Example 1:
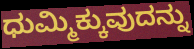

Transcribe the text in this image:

ಧುಮ್ಮಿಕ್ಕುವುದನ್ನು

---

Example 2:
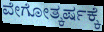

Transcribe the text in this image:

ವೇಗೋತ್ಕರ್ಷಕ್ಕೆ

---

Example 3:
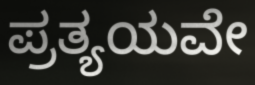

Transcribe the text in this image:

ಪ್ರತ್ಯಯವೇ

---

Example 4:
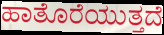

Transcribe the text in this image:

ಹಾತೊರೆಯುತ್ತದೆ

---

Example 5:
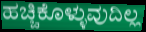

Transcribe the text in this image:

ಹಚ್ಚಿಕೊಳ್ಳುವುದಿಲ್ಲ